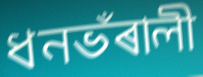
ধনভঁৰালী